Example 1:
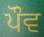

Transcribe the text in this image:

ਪੌਵ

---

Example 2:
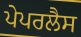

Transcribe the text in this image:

ਪੇਪਰਲੈਸ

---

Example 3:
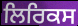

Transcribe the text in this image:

ਲਿਰਿਕਸ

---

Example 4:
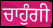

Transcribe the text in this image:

ਚਾਹੁੰਗੀ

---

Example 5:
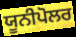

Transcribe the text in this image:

ਯੂਨੀਪੋਲਰ